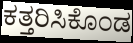
ಕತ್ತರಿಸಿಕೊಂಡ